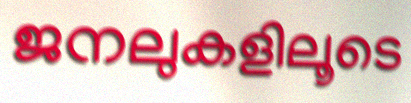
ജനലുകളിലൂടെ